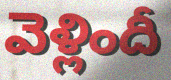
వెళ్లిందీ